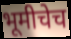
भूमीचेच